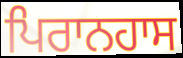
ਪਿਰਾਨਹਾਸ